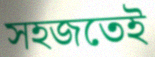
সহজতেই